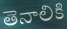
తెనాలికి